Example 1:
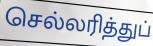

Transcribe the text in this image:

செல்லரித்துப்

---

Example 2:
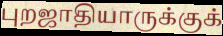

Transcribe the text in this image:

புறஜாதியாருக்குக்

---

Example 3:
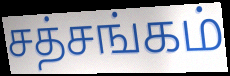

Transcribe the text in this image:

சத்சங்கம்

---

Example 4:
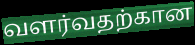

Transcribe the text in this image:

வளர்வதற்கான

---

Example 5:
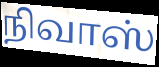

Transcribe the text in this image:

நிவாஸ்